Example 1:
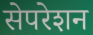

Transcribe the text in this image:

सेपरेशन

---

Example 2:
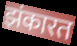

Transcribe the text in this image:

झंकारत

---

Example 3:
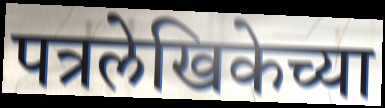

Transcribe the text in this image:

पत्रलेखिकेच्या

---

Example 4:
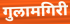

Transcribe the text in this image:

गुलामगिरी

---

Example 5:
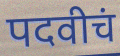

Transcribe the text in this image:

पदवीचं